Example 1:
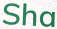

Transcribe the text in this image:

Sha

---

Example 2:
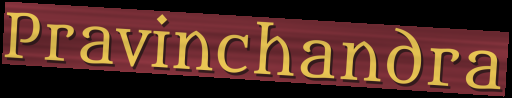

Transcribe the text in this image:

Pravinchandra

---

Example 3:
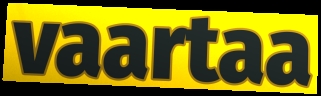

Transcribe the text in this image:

vaartaa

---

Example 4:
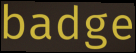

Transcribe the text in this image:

badge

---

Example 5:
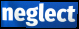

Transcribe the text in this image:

neglect